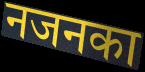
नजनका